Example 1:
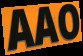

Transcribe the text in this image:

AAO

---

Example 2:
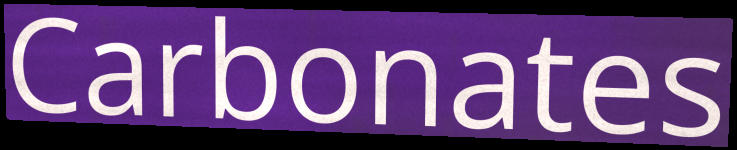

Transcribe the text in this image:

Carbonates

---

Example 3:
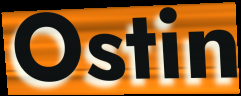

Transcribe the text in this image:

Ostin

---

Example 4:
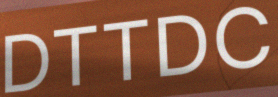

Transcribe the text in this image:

DTTDC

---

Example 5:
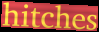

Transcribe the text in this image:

hitches